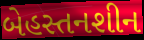
બેહસ્તનશીન